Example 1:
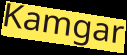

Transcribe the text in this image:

Kamgar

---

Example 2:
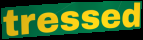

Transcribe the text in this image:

tressed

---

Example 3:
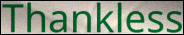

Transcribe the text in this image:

Thankless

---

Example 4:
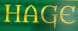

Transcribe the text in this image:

HAGE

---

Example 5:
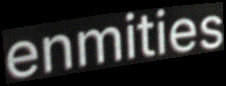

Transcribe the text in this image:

enmities